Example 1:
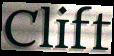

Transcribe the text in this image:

Clift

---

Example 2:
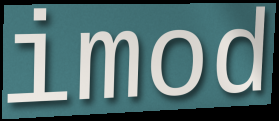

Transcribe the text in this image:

imod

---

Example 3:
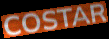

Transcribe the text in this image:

COSTAR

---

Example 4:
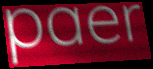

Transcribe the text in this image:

paer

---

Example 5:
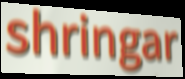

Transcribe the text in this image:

shringar